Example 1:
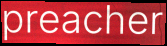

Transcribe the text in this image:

preacher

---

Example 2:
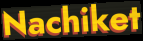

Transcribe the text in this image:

Nachiket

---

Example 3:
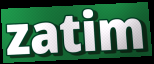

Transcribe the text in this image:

zatim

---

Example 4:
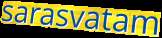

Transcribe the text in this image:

sarasvatam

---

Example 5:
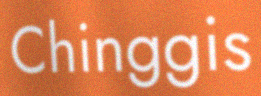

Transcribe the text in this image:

Chinggis